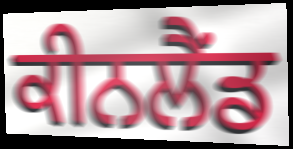
ਕੀਨਲੈਂਡ